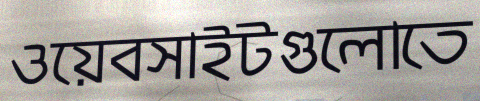
ওয়েবসাইটগুলোতে